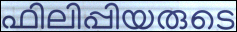
ഫിലിപ്പിയരുടെ